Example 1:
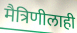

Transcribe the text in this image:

मैत्रिणीलाही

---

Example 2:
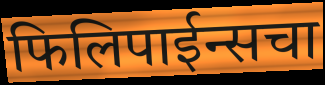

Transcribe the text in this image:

फिलिपाईन्सचा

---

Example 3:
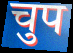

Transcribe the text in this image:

चुप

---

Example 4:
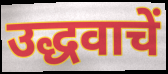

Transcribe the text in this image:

उद्धवाचें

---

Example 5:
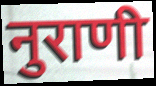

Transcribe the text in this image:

नुराणी